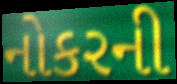
નોકરની